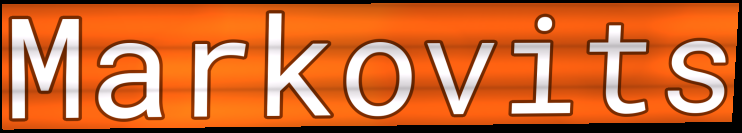
Markovits